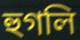
হুগলি